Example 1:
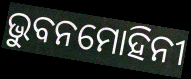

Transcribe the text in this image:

ଭୁବନମୋହିନୀ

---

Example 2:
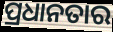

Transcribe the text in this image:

ପ୍ରଧାନତାର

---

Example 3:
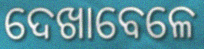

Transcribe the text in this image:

ଦେଖାବେଳେ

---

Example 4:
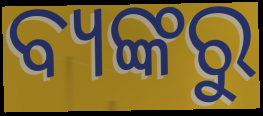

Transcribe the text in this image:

ବ୍ୟଙ୍କରୁ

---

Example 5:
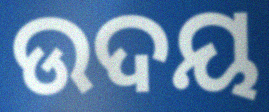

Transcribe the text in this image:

ଉଦୟ